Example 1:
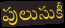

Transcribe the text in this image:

పులుసుకీ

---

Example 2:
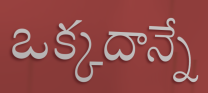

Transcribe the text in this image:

ఒక్కదాన్నే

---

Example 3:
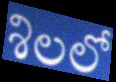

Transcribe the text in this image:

శిలలో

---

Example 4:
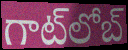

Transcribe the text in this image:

గాట్‍లోబ్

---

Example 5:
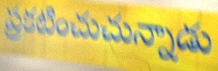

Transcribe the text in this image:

ప్రకటించుచున్నాడు